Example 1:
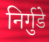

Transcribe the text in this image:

निर्गुडे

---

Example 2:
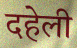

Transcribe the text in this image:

दहेली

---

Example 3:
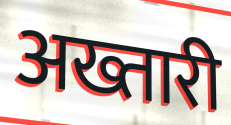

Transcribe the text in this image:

अख्तारी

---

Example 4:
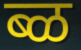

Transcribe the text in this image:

ब्ळ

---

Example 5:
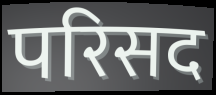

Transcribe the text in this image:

परिसद